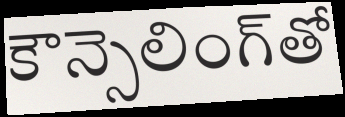
కౌన్సెలింగ్‌తో